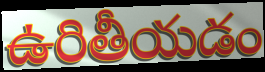
ఉరితీయడం